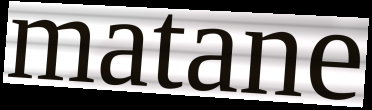
matane